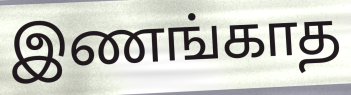
இணங்காத